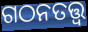
ଗଠନତତ୍ତ୍ୱ